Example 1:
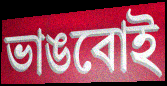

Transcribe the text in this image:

ভাঙবোই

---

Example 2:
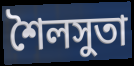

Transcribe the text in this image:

শৈলসুতা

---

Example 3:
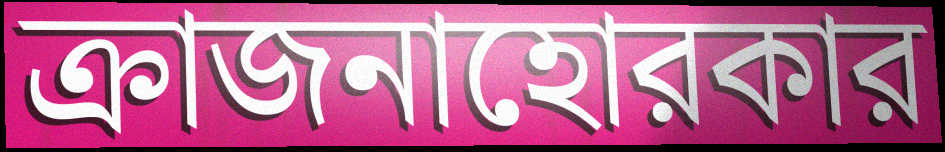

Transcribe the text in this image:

ক্রাজনাহোরকার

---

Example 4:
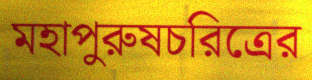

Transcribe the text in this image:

মহাপুরুষচরিত্রের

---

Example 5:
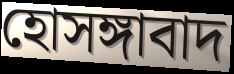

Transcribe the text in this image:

হোসঙ্গাবাদ